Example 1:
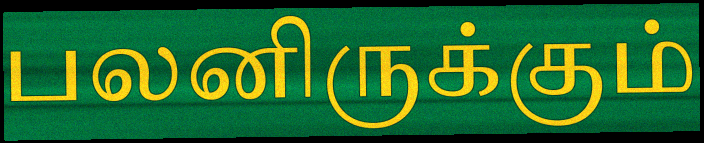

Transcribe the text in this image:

பலனிருக்கும்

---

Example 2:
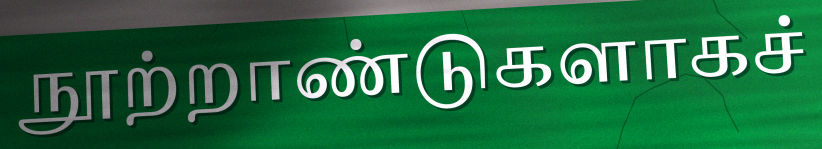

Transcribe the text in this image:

நூற்றாண்டுகளாகச்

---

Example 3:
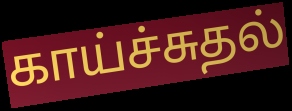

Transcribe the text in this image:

காய்ச்சுதல்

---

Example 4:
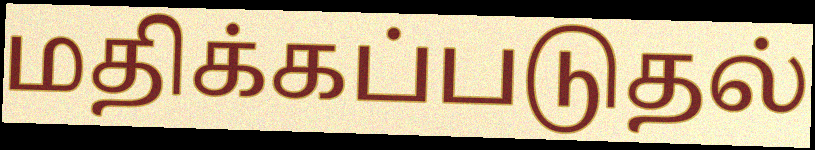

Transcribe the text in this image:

மதிக்கப்படுதல்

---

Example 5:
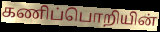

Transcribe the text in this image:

கணிப்பொறியின்